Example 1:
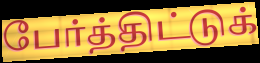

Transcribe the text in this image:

பேர்த்திட்டுக்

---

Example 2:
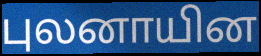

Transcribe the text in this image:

புலனாயின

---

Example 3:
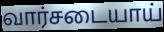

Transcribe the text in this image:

வார்சடையாய்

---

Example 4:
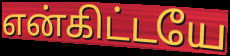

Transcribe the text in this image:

என்கிட்டயே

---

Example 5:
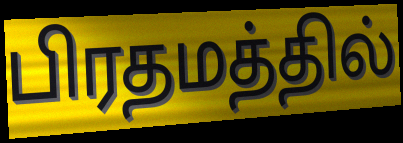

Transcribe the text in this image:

பிரதமத்தில்